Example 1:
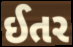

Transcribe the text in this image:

ઈતર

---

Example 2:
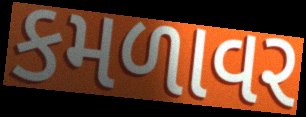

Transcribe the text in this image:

કમળાવર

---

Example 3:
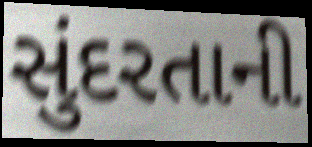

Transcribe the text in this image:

સુંદરતાની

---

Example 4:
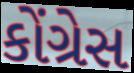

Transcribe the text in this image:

કોંગ્રેસ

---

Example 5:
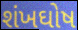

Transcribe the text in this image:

શંખઘોષ